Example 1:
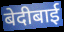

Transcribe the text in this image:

बेदीबाई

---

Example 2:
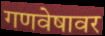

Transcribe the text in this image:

गणवेषावर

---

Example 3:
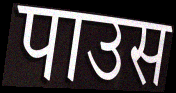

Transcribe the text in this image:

पाउस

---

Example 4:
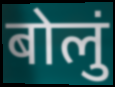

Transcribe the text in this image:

बोलुं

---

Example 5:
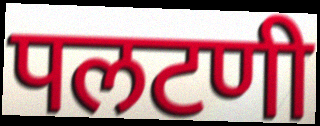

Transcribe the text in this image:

पलटणी